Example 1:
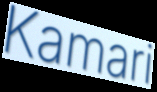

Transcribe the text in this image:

Kamari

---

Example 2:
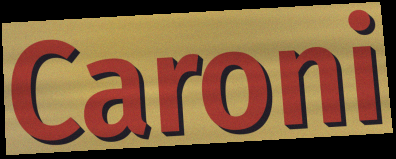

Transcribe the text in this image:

Caroni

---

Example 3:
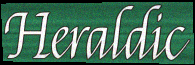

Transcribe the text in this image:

Heraldic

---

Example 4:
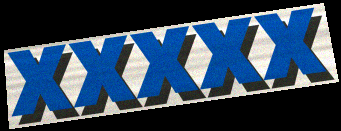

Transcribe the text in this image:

xxxxx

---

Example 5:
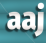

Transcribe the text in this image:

aaj